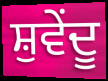
ਸ਼ੁਵੇਂਦੂ